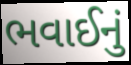
ભવાઈનું